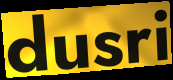
dusri